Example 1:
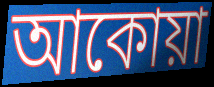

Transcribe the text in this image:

আকোয়া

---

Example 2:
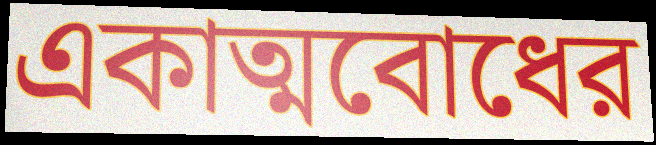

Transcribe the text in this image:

একাত্মবোধের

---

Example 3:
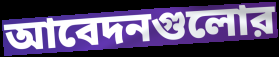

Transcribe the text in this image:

আবেদনগুলোর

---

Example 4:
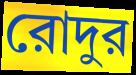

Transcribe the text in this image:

রোদুর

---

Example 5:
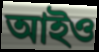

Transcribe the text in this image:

আইও